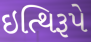
ઇત્થિરૂપે